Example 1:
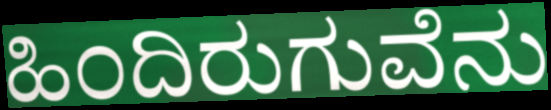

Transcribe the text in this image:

ಹಿಂದಿರುಗುವೆನು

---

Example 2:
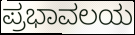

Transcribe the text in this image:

ಪ್ರಭಾವಲಯ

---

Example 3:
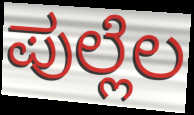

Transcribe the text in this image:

ಪುಲ್ಲೆಲ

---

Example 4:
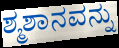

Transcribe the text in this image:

ಶ್ಮಶಾನವನ್ನು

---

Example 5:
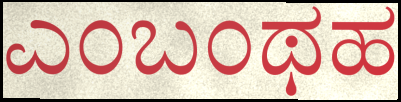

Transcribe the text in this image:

ಎಂಬಂಥಹ